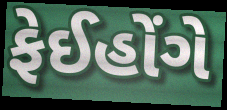
ફેઈહોંગે